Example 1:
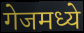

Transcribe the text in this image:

गेजमध्ये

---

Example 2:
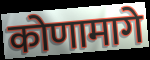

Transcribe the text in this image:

कोणामागे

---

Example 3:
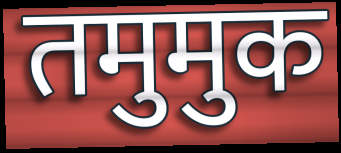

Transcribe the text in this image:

तमुमुक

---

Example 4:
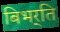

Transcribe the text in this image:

बिभर्ति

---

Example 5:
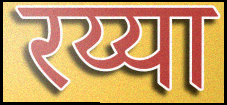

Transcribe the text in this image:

रय्या